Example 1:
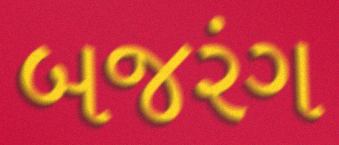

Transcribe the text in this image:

બજરંગ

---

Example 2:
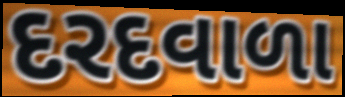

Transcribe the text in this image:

દરદવાળા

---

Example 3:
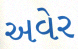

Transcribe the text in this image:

અવેર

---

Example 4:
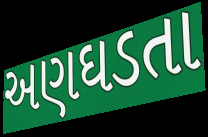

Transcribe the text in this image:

અણઘડતા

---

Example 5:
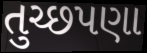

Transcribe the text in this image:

તુચ્છપણા